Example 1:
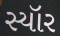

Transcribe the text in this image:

સ્યૉર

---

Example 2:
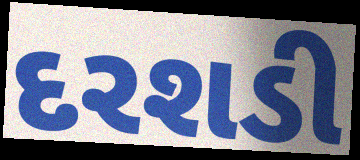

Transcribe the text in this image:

દરશડી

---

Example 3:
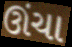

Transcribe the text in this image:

ઊંચા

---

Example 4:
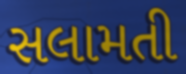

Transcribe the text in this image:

સલામતી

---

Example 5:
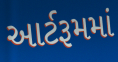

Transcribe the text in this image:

આર્ટરૂમમાં